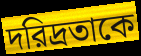
দরিদ্রতাকে